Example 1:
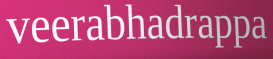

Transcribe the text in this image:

veerabhadrappa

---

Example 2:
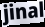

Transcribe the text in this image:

jinal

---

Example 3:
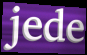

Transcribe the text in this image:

jede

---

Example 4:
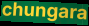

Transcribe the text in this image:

chungara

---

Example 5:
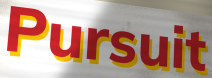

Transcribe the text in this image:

Pursuit